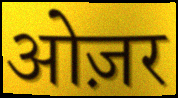
ओज़र